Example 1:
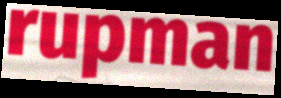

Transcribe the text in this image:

rupman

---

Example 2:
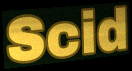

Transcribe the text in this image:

Scid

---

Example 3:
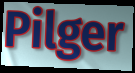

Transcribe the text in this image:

Pilger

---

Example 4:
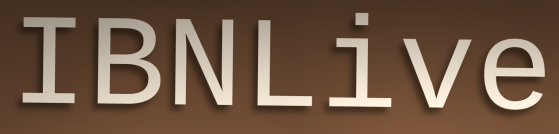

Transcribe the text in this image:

IBNLive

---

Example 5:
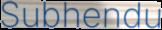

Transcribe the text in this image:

Subhendu